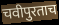
चवीपुरताच